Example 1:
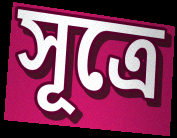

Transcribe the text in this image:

সূত্ৰে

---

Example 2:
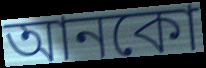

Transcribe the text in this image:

আনকো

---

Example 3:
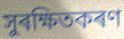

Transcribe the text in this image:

সুৰক্ষিতকৰণ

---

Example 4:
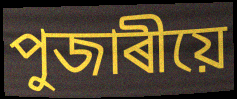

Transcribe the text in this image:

পুজাৰীয়ে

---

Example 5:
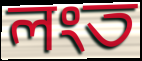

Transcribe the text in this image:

লংত